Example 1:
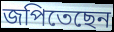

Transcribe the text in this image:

জপিতেছেন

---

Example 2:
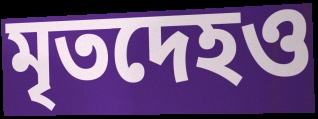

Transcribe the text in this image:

মৃতদেহও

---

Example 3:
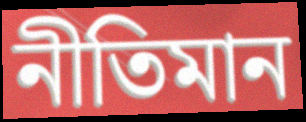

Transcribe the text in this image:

নীতিমান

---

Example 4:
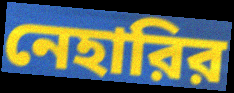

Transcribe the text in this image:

নেহারির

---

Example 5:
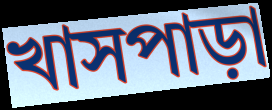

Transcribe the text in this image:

খাসপাড়া